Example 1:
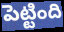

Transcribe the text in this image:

పెట్టింది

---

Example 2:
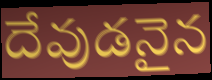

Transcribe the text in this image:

దేవుడనైన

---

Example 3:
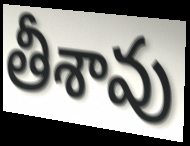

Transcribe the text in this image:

తీశావు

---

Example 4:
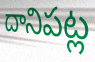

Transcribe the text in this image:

దానిపట్ల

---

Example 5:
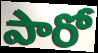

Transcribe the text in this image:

పారో